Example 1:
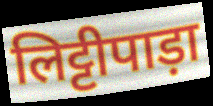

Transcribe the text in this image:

लिट्टीपाड़ा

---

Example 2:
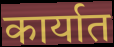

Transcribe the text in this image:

कार्यात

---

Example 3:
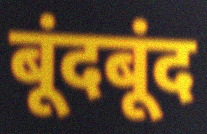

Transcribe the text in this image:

बूंदबूंद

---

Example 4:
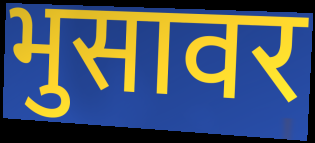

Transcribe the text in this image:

भुसावर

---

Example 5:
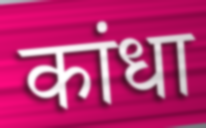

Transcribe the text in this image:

कांधा